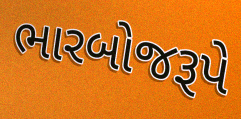
ભારબોજરૂપે